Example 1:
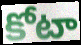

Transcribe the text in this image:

కోటా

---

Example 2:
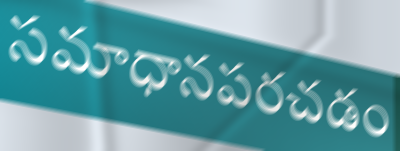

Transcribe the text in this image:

సమాధానపరచడం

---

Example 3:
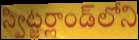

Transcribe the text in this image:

స్విట్జర్లాండ్‌లోని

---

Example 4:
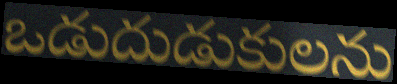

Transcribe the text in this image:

ఒడుదుడుకులను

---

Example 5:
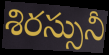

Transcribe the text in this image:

శిరస్సునీ